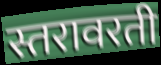
स्तरावरती